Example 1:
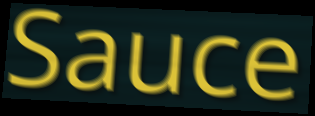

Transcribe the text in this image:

Sauce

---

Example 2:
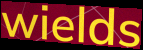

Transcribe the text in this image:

wields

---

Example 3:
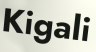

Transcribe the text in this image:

Kigali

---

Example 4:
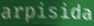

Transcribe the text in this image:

arpisida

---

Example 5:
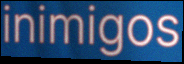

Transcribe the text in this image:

inimigos